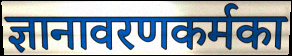
ज्ञानावरणकर्मका